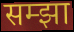
सम्झा